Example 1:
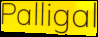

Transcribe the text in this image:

Palligal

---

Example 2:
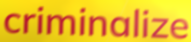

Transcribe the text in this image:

criminalize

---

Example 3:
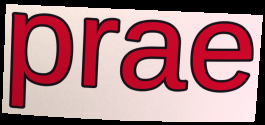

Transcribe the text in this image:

prae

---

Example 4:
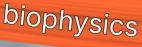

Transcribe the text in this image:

biophysics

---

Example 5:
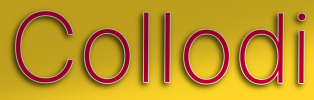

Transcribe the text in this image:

Collodi